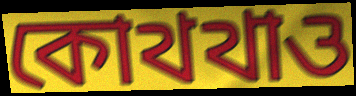
কোথথাও